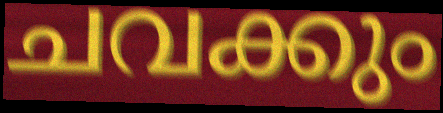
ചവക്കും